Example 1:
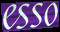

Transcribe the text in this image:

esso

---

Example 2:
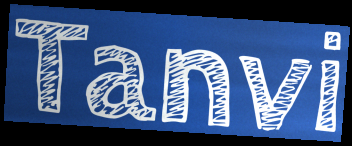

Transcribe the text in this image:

Tanvi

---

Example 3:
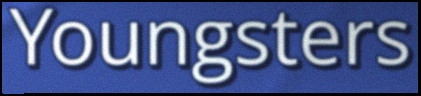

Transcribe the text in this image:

Youngsters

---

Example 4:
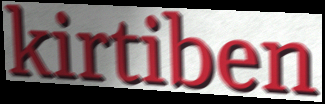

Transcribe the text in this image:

kirtiben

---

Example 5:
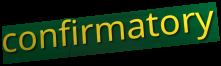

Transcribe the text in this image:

confirmatory